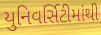
યુનિવર્સિટીમાંથી